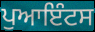
ਪੁਆਇੰਟਸ